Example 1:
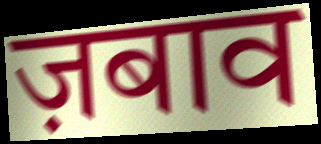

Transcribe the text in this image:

ज़बाव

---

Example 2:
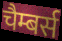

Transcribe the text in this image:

चैम्‍बर्स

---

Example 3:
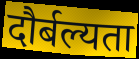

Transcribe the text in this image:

दौर्बल्यता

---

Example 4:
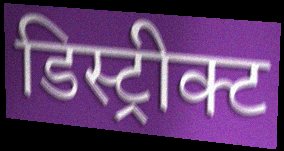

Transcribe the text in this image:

डिस्ट्रीक्ट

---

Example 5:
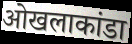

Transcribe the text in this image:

ओखलाकांडा